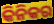
କିନିକର